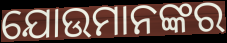
ଯୋଉମାନଙ୍କର